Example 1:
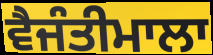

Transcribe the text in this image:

ਵੈਜੰਤੀਮਾਲਾ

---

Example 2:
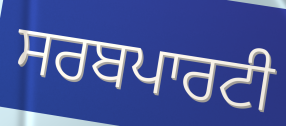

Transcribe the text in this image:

ਸਰਬਪਾਰਟੀ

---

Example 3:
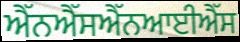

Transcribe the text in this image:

ਐੱਨਐੱਸਐੱਨਆਈਐੱਸ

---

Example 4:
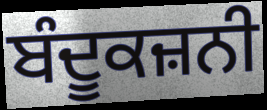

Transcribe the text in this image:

ਬੰਦੂਕਜ਼ਨੀ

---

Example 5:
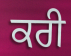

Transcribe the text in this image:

ਕਰੀ